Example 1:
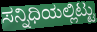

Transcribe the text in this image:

ಸನ್ನಿಧಿಯಲ್ಲಿಟ್ಟು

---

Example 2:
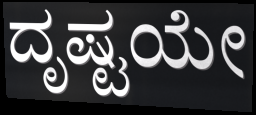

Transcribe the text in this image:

ದೃಷ್ಟಯೇ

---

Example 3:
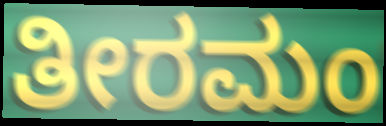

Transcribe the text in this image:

ತೀರಮಂ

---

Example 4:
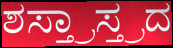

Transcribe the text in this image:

ಶಸ್ತ್ರಾಸ್ತ್ರದ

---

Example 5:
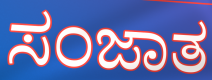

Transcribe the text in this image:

ಸಂಜಾತ